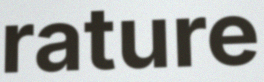
rature